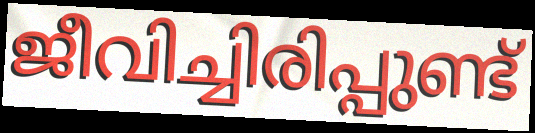
ജീവിച്ചിരിപ്പുണ്ട്